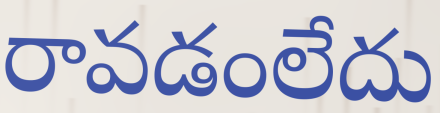
రావడంలేదు